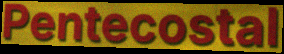
Pentecostal